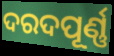
ଦରଦପୂର୍ଣ୍ଣ